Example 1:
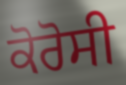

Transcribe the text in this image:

ਕੋਰੋਸੀ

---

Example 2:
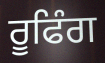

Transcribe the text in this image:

ਰੂਫਿੰਗ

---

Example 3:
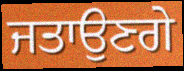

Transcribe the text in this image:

ਜਤਾਉਣਗੇ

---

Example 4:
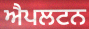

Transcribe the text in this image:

ਐਪਲਟਨ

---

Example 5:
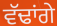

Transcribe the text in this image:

ਵੱਢਾਂਗੇ